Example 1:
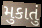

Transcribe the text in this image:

મુકાતું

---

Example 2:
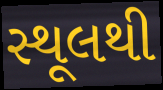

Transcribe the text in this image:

સ્થૂલથી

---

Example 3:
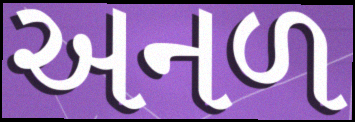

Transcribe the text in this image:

અનળ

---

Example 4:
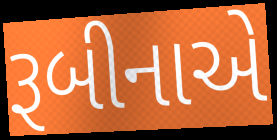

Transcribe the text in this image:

રૂબીનાએ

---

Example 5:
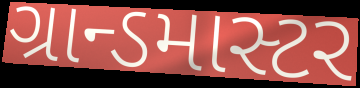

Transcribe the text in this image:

ગ્રાન્ડમાસ્ટર